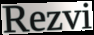
Rezvi